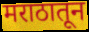
मराठातून